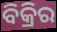
ବିକ୍ରିର